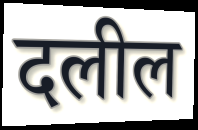
दलील